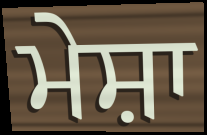
ਮੇਸ਼ਾ